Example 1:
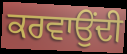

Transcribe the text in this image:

ਕਰਵਾਉਂਦੀ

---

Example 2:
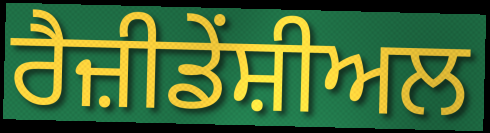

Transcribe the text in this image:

ਰੈਜ਼ੀਡੇਂਸ਼ੀਅਲ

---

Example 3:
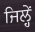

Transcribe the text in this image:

ਜਿਲ੍ਹੇਂ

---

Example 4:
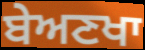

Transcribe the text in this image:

ਬੇਅਣਖਾ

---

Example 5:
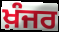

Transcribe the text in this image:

ਖ਼ੰਜਰ